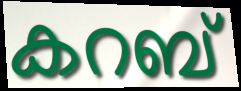
കറബ്